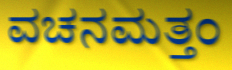
ವಚನಮತ್ತಂ